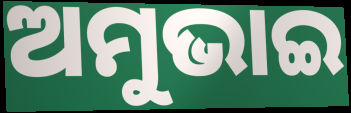
ଅମୁଭାଇ